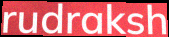
rudraksh